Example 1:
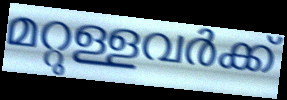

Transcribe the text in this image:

മറ്റുള്ളവർക്ക്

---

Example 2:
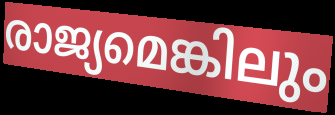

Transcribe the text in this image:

രാജ്യമെങ്കിലും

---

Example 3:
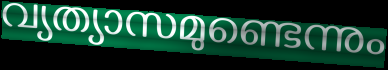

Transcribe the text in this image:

വ്യത്യാസമുണ്ടെന്നും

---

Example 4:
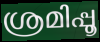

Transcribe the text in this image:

ശ്രമിപ്പൂ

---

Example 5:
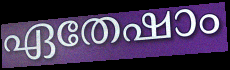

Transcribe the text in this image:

ഏതേഷാം